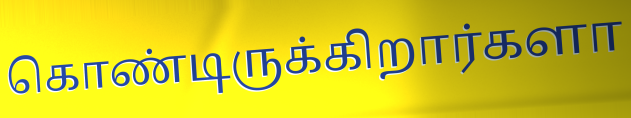
கொண்டிருக்கிறார்களா